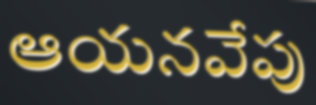
ఆయనవేపు